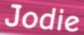
Jodie